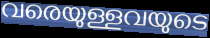
വരെയുള്ളവയുടെ